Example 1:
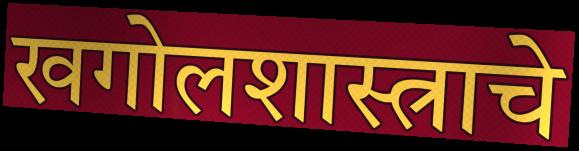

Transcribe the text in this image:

खगोलशास्त्राचे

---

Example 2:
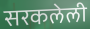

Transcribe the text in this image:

सरकलेली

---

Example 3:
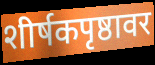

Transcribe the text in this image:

शीर्षकपृष्ठावर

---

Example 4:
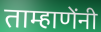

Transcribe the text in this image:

ताम्हाणेंनी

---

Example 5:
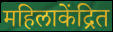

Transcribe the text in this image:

महिलाकेंद्रित